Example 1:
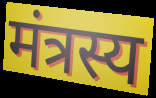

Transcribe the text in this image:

मंत्रस्य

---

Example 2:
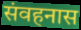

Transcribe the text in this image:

संवहनास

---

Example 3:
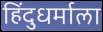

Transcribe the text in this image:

हिंदुधर्माला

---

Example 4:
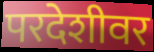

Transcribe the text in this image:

परदेशीवर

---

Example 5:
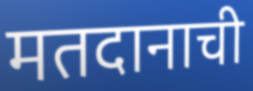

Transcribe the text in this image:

मतदानाची